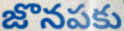
జొనపకు